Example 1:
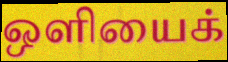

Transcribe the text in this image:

ஒளியைக்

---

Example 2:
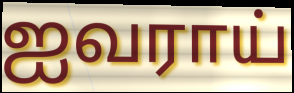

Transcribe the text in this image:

ஐவராய்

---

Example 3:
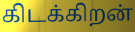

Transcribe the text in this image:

கிடக்கிறன்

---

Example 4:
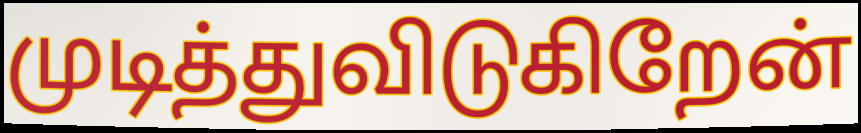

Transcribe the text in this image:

முடித்துவிடுகிறேன்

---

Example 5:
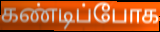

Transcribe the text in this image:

கண்டிப்போக